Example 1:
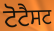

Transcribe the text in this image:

ਟੋਟੈਸਟ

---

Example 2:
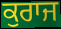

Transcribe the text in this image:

ਕੁਰਾਜ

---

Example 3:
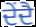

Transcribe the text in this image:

ਦੇਂਦੈ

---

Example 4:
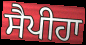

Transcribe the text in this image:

ਸੈਪੀਹਾ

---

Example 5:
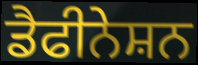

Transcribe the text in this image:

ਡੈਫੀਨੇਸ਼ਨ